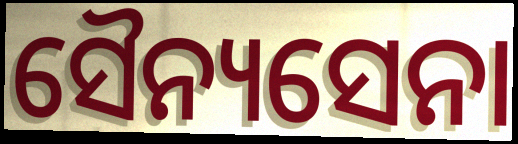
ସୈନ୍ୟସେନା